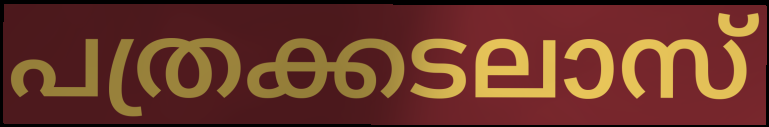
പത്രക്കടലാസ്